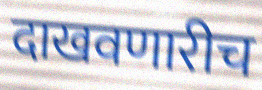
दाखवणारीच